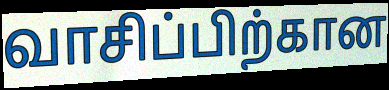
வாசிப்பிற்கான